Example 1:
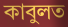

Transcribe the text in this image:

কাবুলত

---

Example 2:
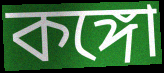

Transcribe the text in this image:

কঙ্গো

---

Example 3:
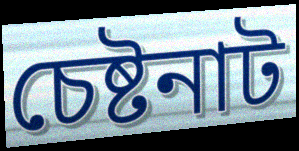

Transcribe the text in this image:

চেষ্টনাট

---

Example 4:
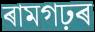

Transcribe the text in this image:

ৰামগঢ়ৰ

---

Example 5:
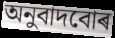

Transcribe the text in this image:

অনুবাদবোৰ